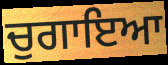
ਚੁਗਾਇਆ